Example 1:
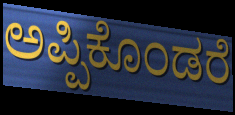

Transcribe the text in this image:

ಅಪ್ಪಿಕೊಂಡರೆ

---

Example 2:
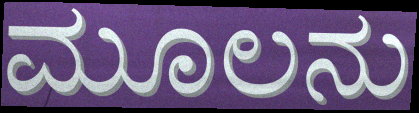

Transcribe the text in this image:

ಮೂಲನು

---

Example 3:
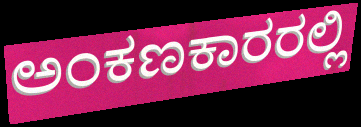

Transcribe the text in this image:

ಅಂಕಣಕಾರರಲ್ಲಿ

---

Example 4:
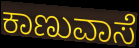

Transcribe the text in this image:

ಕಾಣುವಾಸೆ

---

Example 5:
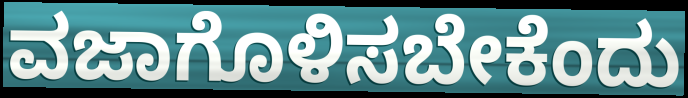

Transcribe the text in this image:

ವಜಾಗೊಳಿಸಬೇಕೆಂದು